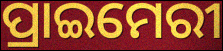
ପ୍ରାଇମେରୀ